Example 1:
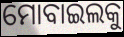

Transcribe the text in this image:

ମୋବାଇଲକୁ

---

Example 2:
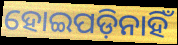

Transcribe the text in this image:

ହୋଇପଡ଼ିନାହିଁ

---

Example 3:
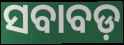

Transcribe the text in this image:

ସବାବଡ଼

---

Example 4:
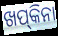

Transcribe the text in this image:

ଖପ୍‌କିନା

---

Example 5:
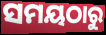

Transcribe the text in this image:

ସମୟଠାରୁ